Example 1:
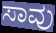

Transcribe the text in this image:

ಸಾವು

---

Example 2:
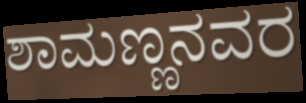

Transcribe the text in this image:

ಶಾಮಣ್ಣನವರ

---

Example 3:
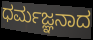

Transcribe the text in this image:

ಧರ್ಮಜ್ಞನಾದ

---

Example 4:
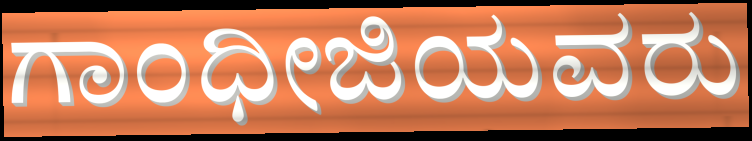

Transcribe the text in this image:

ಗಾಂಧೀಜಿಯವರು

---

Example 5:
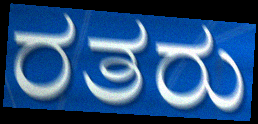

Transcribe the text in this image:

ರತರು